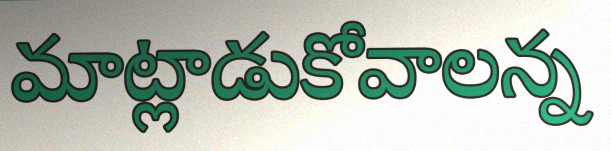
మాట్లాడుకోవాలన్న